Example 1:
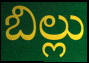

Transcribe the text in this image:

బిల్లు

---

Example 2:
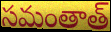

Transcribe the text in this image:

సమంతాత్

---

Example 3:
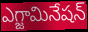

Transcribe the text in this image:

ఎగ్జామినేషన్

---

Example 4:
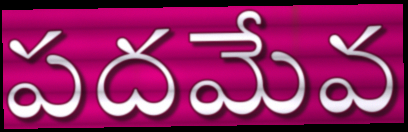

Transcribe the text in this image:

పదమేవ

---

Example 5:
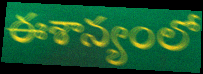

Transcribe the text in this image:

ఈశాన్యంలో